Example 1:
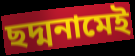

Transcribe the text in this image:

ছদ্মনামেই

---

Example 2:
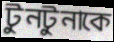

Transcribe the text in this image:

টুনটুনাকে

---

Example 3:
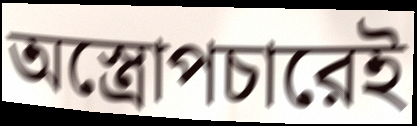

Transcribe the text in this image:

অস্ত্রোপচারেই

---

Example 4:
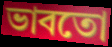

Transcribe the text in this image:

ভাবতো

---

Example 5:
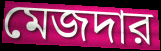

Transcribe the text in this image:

মেজদার